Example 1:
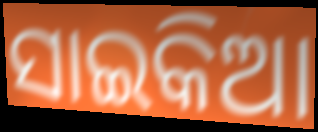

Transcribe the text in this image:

ସାଇକିଆ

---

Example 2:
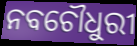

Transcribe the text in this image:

ନବଚୌଧୁରୀ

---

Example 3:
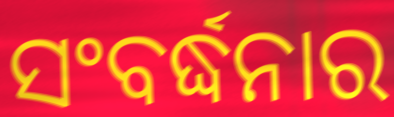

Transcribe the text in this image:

ସଂବର୍ଦ୍ଧନାର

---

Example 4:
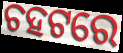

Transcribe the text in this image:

ଚହଟରେ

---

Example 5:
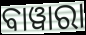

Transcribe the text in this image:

ବାୱାରା